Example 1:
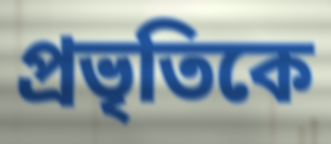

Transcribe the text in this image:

প্রভৃতিকে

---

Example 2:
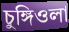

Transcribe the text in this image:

চুঙ্গিওলা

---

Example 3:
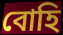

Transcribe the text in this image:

বোহি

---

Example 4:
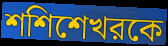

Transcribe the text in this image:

শশিশেখরকে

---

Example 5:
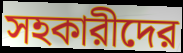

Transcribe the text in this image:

সহকারীদের